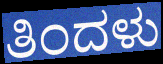
ತಿಂದಳು